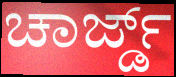
ಚಾರ್ಜ್ಡ್